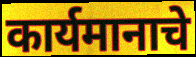
कार्यमानाचे